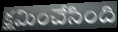
క్షమించేసింది